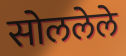
सोललेले